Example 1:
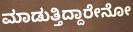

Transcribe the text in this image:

ಮಾಡುತ್ತಿದ್ದಾರೇನೋ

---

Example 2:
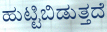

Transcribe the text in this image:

ಹುಟ್ಟಿಬಿಡುತ್ತದೆ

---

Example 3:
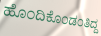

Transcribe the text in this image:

ಹೊಂದಿಕೊಂಡಂತಿದ್ದ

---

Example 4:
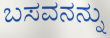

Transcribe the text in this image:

ಬಸವನನ್ನು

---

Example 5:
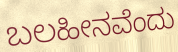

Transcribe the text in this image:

ಬಲಹೀನವೆಂದು